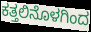
ಕತ್ತಲಿನೊಳಗಿಂದ